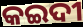
କଇଦୀ